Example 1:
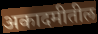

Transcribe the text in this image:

अकादमीतील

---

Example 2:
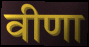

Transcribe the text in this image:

वीणा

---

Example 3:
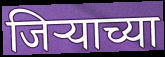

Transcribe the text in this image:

जिऱ्याच्या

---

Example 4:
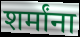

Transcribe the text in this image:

शर्मांना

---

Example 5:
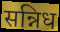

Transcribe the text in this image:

सन्निध